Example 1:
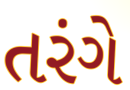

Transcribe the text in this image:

તરંગે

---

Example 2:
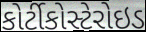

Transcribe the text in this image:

કોર્ટીકોસ્ટેરોઇડ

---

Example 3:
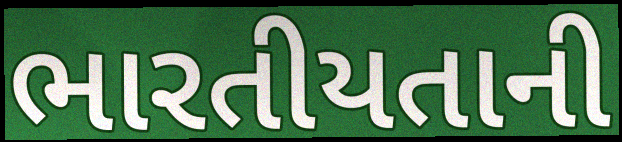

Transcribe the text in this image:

ભારતીયતાની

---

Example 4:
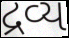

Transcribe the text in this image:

દ્રવ્ય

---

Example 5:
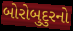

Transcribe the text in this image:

બોરોબુદુરનો